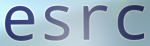
esrc